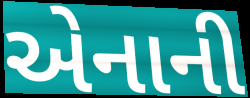
એનાની